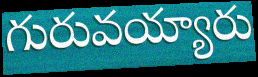
గురువయ్యారు